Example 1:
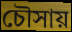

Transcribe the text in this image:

চৌসায়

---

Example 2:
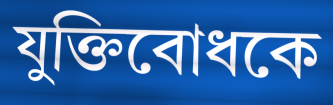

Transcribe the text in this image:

যুক্তিবোধকে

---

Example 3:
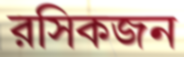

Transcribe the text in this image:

রসিকজন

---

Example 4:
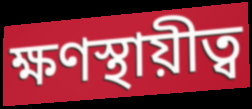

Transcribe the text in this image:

ক্ষণস্থায়ীত্ব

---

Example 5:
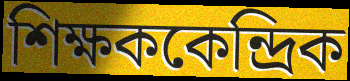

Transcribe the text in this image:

শিক্ষককেন্দ্রিক